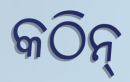
କଠିନ୍